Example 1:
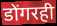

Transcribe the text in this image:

डोंगरही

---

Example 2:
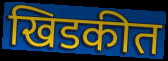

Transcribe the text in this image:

खिडकीत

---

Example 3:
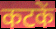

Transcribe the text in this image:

कटकें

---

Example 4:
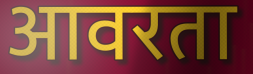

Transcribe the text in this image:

आवरता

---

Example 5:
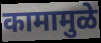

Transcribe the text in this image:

कामामुळे